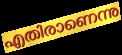
എതിരാണെന്നു